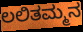
ಲಲಿತಮ್ಮನ